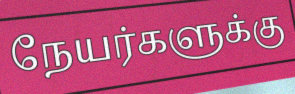
நேயர்களுக்கு